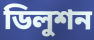
ডিলুশন